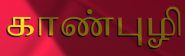
காண்புழி